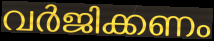
വർജിക്കണം